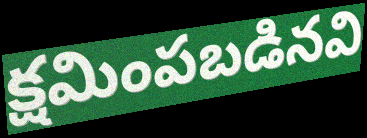
క్షమింపబడినవి